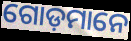
ଗୋଡ଼ମାନେ